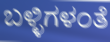
ಬಳ್ಳಿಗಳಂತೆ